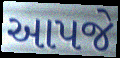
આપજે